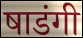
षाडंगी